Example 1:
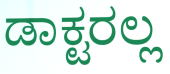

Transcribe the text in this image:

ಡಾಕ್ಟರಲ್ಲ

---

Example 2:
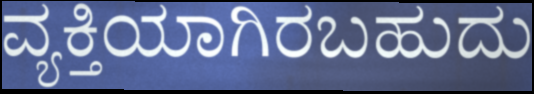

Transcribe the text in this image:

ವ್ಯಕ್ತಿಯಾಗಿರಬಹುದು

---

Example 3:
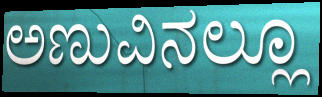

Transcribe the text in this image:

ಅಣುವಿನಲ್ಲೂ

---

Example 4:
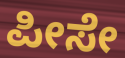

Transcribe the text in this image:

ಪೀಸೇ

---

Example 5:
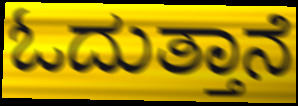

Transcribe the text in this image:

ಓದುತ್ತಾನೆ